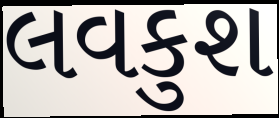
લવકુશ